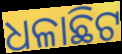
ଧଳାଛିଟ